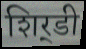
शिर्डी